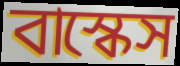
বাস্কেস